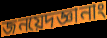
জনয়েদজ্ঞানাং